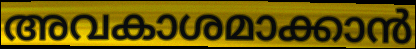
അവകാശമാക്കാൻ